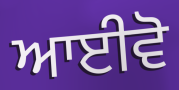
ਆਈਵੋ